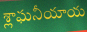
శ్లాఘనీయాయ